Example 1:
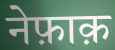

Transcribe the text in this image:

नेफ़ाक़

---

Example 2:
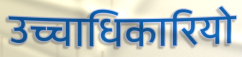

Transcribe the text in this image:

उच्चाधिकारियो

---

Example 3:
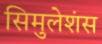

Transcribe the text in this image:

सिमुलेशंस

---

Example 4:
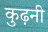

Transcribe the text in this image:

कुढ़नी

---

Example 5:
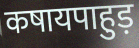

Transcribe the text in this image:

कषायपाहुड़